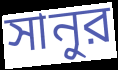
সানুর